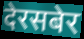
देरसबेर